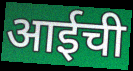
आईची